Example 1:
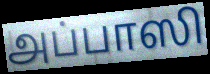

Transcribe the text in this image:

அப்பாஸி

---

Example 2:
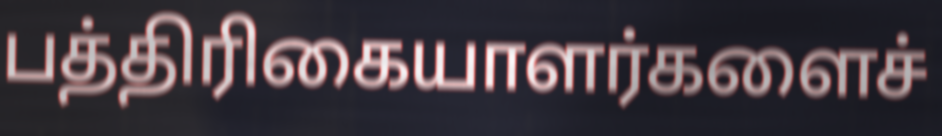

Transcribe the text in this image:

பத்திரிகையாளர்களைச்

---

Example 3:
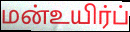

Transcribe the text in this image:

மன்உயிர்ப்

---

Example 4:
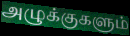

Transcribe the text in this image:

அழுக்குகளும்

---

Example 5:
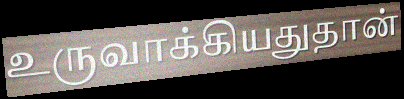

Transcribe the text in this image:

உருவாக்கியதுதான்